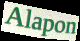
Alapon